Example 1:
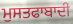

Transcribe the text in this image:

ਮੁਸਤਫਾਬਾਦੀ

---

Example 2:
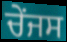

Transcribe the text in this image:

ਚੇਂਜਸ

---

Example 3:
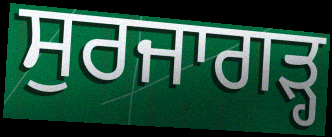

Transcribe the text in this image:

ਸੁਰਜਾਗੜ੍ਹ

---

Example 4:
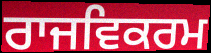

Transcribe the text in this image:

ਰਾਜਵਿਕਰਮ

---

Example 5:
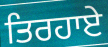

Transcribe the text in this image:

ਤਿਰਹਾਏ